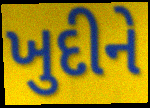
ખુદીને